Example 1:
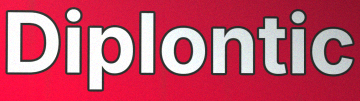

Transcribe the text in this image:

Diplontic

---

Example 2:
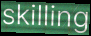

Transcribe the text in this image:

skilling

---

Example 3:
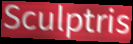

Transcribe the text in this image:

Sculptris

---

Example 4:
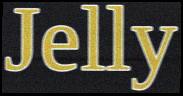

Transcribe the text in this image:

Jelly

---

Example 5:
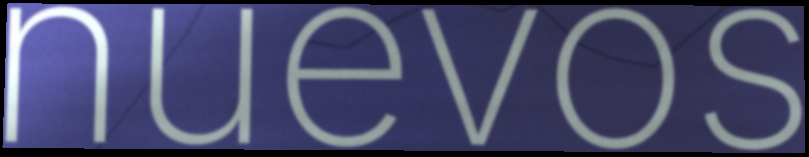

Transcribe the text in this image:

nuevos